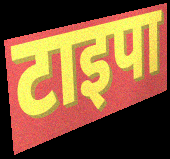
टाइपा